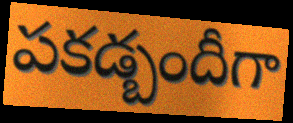
పకడ్బందీగా